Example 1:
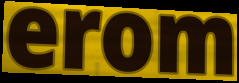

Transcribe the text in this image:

erom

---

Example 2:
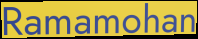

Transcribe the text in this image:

Ramamohan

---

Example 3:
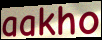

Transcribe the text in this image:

aakho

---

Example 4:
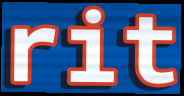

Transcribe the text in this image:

rit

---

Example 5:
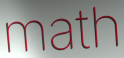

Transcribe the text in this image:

math